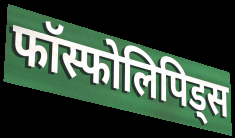
फॉस्फोलिपिड्स